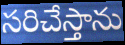
సరిచేస్తాను